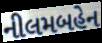
નીલમબહેન